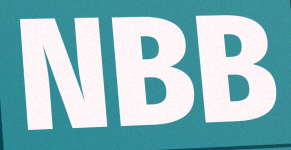
NBB